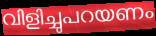
വിളിച്ചുപറയണം